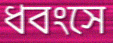
ধবংসে